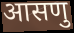
आसणु